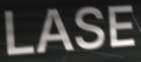
LASE